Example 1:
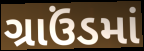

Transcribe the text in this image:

ગ્રાઉંડમાં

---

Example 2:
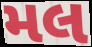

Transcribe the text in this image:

મલ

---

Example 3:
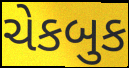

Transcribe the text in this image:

ચેકબુક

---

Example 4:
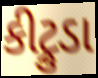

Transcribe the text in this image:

કીટ્રુડા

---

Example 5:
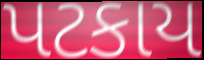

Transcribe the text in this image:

પટકાય